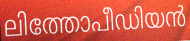
ലിത്തോപീഡിയൻ